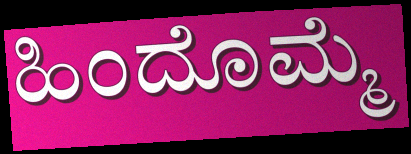
ಹಿಂದೊಮ್ಮೆ